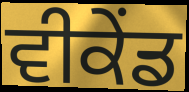
ਵੀਕੇਂਡ